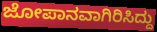
ಜೋಪಾನವಾಗಿರಿಸಿದ್ದು